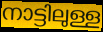
നാട്ടിലുള്ള